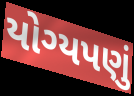
યોગ્યપણું